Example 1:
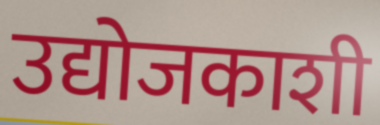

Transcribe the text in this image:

उद्योजकाशी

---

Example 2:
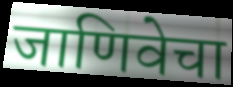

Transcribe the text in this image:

जाणिवेचा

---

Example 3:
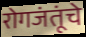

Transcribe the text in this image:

रोगजंतूंचे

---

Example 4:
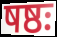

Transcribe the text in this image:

षष्ठः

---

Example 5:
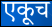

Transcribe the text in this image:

एकूच